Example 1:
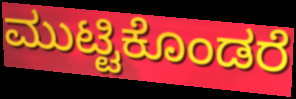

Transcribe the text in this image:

ಮುಟ್ಟಿಕೊಂಡರೆ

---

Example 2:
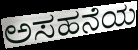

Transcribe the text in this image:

ಅಸಹನೆಯ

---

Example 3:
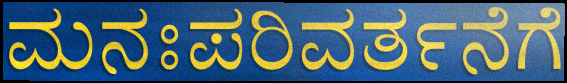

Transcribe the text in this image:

ಮನಃಪರಿವರ್ತನೆಗೆ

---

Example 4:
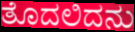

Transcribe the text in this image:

ತೊದಲಿದನು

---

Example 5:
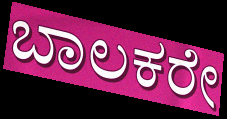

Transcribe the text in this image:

ಬಾಲಕರೇ